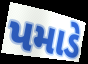
પમાડે